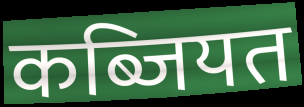
कब्जियत